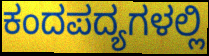
ಕಂದಪದ್ಯಗಳಲ್ಲಿ